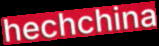
hechchina